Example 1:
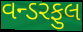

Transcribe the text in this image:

વન્ડરફુલ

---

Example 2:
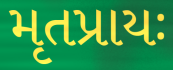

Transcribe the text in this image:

મૃતપ્રાયઃ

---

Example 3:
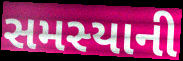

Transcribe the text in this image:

સમસ્યાની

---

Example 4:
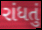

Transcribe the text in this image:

રાંધતું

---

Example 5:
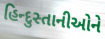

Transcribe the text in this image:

હિન્દુસ્તાનીઓને